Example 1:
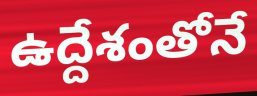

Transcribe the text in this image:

ఉద్దేశంతోనే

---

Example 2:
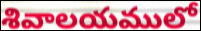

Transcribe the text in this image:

శివాలయములో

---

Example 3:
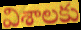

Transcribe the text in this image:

విశాలకు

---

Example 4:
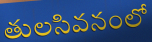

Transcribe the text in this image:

తులసివనంలో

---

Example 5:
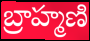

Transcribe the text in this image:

బ్రాహ్మణి